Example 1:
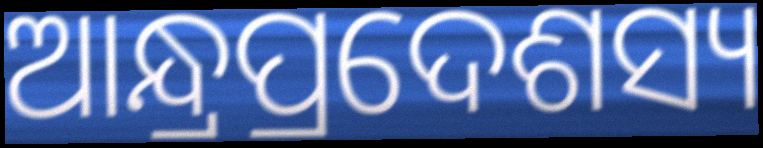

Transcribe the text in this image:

ଆନ୍ଧ୍ରପ୍ରଦେଶସ୍ୟ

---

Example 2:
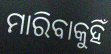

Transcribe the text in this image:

ମାରିବାକୁହିଁ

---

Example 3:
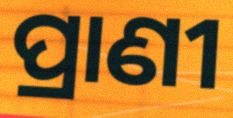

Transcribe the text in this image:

ପ୍ରାଣୀ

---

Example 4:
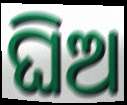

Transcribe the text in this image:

ଘିଅ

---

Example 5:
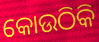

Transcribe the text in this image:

କୋଉଠିକି